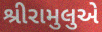
શ્રીરામુલુએ